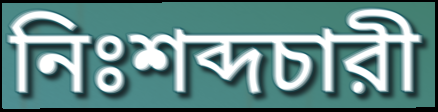
নিঃশব্দচারী